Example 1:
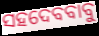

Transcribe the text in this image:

ସହଦେବବାବୁ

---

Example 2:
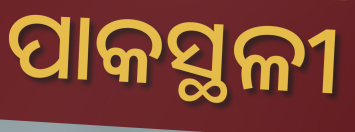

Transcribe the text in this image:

ପାକସ୍ଥଳୀ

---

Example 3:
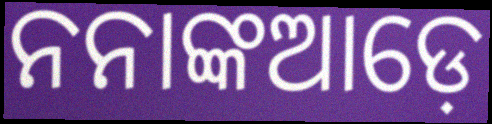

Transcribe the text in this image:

ନନାଙ୍କଆଡ଼େ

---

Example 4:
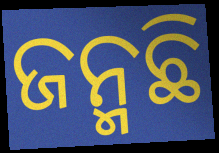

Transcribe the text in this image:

ଜନ୍ମଛି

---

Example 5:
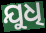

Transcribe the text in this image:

ଯୁଧି